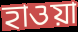
হাওয়া